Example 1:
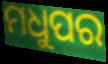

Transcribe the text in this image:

ମଧୁପର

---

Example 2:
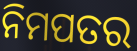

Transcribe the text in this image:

ନିମପତର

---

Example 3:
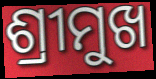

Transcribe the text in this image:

ଶ୍ରୀମୁଖ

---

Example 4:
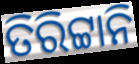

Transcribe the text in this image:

ତିରିଟ୍ଟାନି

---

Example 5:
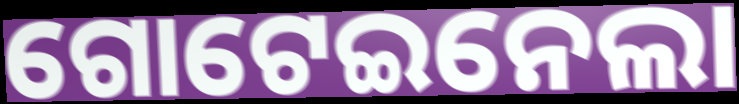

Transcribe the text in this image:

ଗୋଟେଇନେଲା